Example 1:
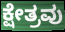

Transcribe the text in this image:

ಕ್ಷೇತ್ರವು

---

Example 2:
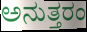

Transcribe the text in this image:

ಅನುತ್ತರಂ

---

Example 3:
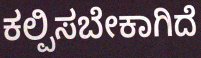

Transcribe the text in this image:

ಕಲ್ಪಿಸಬೇಕಾಗಿದೆ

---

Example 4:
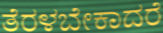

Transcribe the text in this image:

ತೆರಳಬೇಕಾದರೆ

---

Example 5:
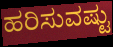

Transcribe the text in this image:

ಹರಿಸುವಷ್ಟು